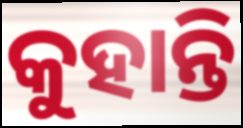
କୁହାନ୍ତି